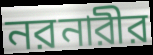
নরনারীর